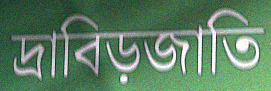
দ্রাবিড়জাতি